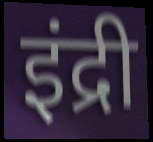
इंद्री